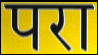
परा